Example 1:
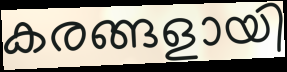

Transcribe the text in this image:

കരങ്ങളായി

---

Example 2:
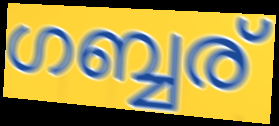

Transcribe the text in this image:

ഗബ്ബര്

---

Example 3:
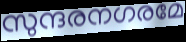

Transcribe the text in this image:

സുന്ദരനഗരമേ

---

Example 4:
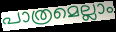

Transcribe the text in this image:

പാത്രമെല്ലാം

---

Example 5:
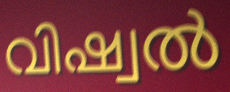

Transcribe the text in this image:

വിഷ്വൽ